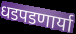
धडपडणार्या